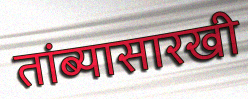
तांब्यासारखी